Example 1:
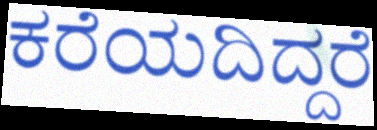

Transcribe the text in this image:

ಕರೆಯದಿದ್ದರೆ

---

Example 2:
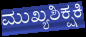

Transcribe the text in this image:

ಮುಖ್ಯಶಿಕ್ಷಕಿ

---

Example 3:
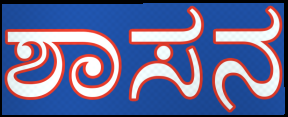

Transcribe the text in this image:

ಶಾಸನ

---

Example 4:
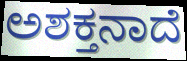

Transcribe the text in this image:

ಅಶಕ್ತನಾದೆ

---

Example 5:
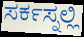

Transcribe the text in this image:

ಸರ್ಕಸ್ನಲ್ಲಿ